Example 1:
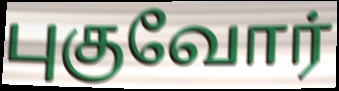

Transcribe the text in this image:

புகுவோர்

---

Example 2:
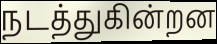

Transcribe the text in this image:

நடத்துகின்றன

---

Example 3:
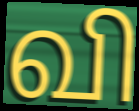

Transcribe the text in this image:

வி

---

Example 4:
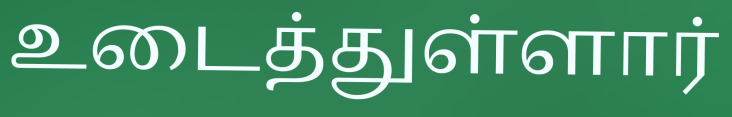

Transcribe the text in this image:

உடைத்துள்ளார்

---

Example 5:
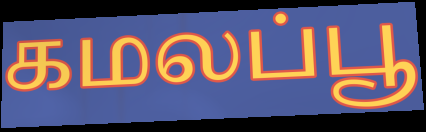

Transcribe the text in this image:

கமலப்பூ